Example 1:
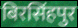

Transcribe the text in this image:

बिरसिंहपुर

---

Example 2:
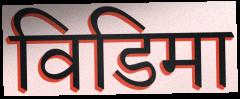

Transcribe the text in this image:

विडिमा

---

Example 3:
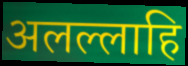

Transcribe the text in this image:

अलल्लाहि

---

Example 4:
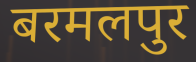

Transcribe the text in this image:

बरमलपुर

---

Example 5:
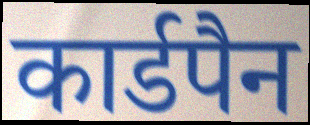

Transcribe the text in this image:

कार्डपैन